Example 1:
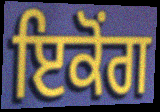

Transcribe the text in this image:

ਇਕੋਂਗ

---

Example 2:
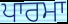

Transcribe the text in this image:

ਪਾਰਮਾ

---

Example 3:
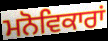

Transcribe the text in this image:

ਮਨੋਵਿਕਾਰਾਂ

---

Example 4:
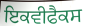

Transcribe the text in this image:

ਇਕਵੀਫੈਕਸ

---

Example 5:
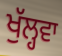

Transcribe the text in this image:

ਖੁੱਲ੍ਹਵਾ